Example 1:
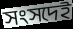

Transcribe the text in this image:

সংসদেই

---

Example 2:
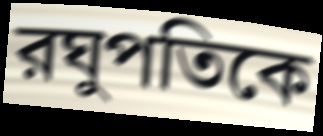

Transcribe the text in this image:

রঘুপতিকে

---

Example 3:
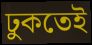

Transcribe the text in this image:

ঢুকতেই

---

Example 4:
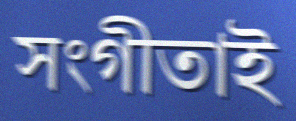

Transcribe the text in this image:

সংগীতাই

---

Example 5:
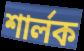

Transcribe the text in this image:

শার্লক